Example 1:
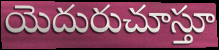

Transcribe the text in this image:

యెదురుచూస్తూ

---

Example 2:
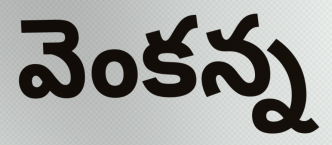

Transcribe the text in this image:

వెంకన్న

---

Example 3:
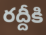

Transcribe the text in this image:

రద్దీకి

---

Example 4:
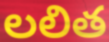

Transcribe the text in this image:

లలిత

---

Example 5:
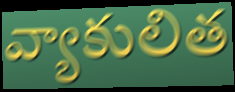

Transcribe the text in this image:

వ్యాకులిత